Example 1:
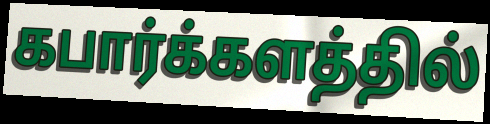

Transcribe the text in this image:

கபார்க்களத்தில்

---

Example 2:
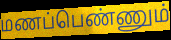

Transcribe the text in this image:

மணப்பெண்ணும்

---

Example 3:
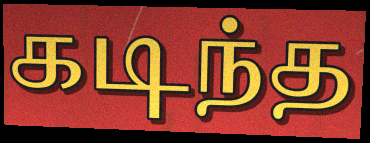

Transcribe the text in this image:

கடிந்த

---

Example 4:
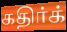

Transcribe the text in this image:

கதிர்க்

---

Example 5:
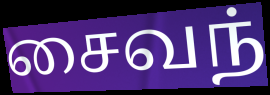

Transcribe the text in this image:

சைவந்